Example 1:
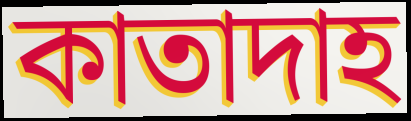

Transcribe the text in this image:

কাতাদাহ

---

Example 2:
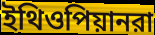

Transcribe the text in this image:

ইথিওপিয়ানরা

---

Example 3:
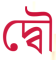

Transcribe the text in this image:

দ্বৌ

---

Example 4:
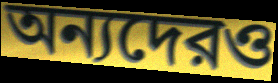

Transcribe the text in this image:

অন্যদেরও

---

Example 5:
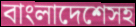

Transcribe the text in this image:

বাংলাদেশেসহ